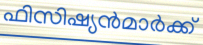
ഫിസിഷ്യൻമാർക്ക്